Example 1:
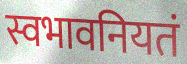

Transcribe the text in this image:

स्वभावनियतं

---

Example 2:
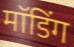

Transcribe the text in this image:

मॉडिंग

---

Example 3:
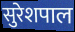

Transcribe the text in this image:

सुरेशपाल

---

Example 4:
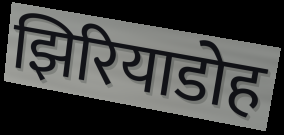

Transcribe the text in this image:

झिरियाडोह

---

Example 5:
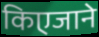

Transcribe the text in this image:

किएजाने